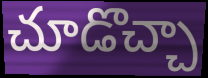
చూడొచ్చా